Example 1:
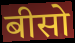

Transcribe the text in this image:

बीसो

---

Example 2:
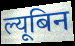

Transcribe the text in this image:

ल्यूबिन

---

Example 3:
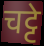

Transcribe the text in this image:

चट्टे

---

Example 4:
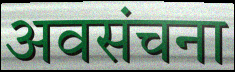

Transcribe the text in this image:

अवसंचना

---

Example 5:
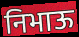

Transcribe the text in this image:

निभाऊ